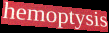
hemoptysis